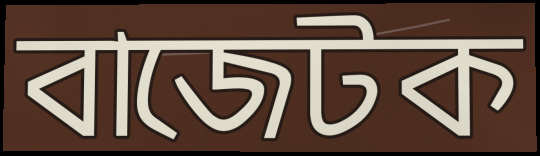
বাজেটক